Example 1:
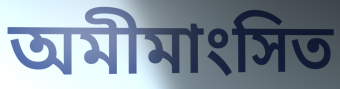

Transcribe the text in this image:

অমীমাংসিত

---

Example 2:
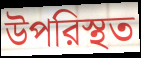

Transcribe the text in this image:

উপরিস্থত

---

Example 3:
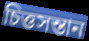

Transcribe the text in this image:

চিত্তসন্তান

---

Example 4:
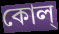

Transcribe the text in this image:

কোল্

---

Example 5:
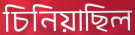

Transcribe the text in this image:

চিনিয়াছিল